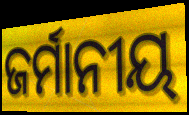
ଜର୍ମାନୀୟ